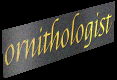
ornithologist